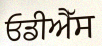
ਓਡੀਐੱਸ